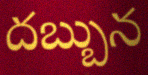
దబ్బున